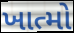
ખાત્મો